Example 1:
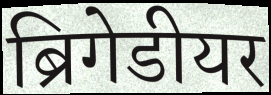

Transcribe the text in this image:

ब्रिगेडीयर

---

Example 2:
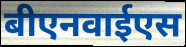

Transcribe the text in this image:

बीएनवाईएस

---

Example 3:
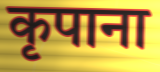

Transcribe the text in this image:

कृपाना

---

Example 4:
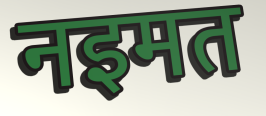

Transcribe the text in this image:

नइमत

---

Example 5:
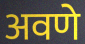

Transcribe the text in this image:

अवणे